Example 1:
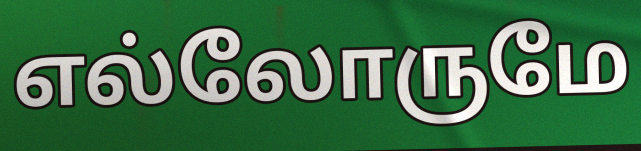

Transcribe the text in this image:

எல்லோருமே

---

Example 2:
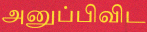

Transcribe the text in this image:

அனுப்பிவிட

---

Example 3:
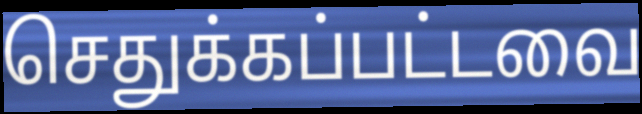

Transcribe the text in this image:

செதுக்கப்பட்டவை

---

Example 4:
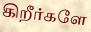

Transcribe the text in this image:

கிறீர்களே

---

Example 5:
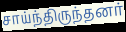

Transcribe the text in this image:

சாய்ந்திருந்தனர்